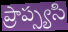
ప్రాప్స్యసి